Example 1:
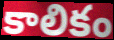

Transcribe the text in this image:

కాలికం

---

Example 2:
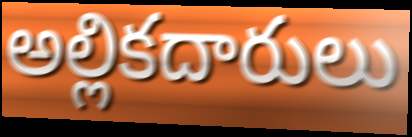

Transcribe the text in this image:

అల్లికదారులు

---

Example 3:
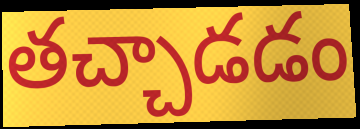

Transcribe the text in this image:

తచ్చాడడం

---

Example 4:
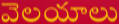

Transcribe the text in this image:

వెలయాలు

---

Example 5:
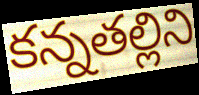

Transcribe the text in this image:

కన్నతల్లిని